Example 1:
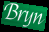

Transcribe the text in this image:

Bryn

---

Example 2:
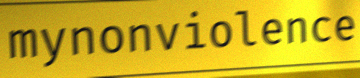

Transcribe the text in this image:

mynonviolence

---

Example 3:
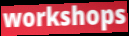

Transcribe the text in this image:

workshops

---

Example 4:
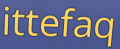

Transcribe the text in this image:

ittefaq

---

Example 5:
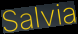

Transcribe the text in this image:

Salvia